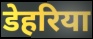
डेहरिया